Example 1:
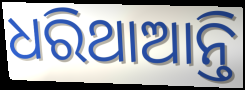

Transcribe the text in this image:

ଧରିଥାଆନ୍ତି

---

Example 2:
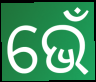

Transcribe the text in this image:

ଭେଁ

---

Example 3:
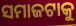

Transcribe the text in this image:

ସମାଜଟାକୁ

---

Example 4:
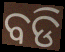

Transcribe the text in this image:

ବଡି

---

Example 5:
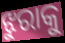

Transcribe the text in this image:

ଝୁରାକୁ